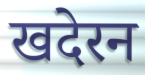
खदेरन